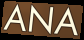
ANA